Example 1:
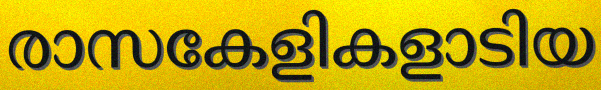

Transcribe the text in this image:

രാസകേളികളാടിയ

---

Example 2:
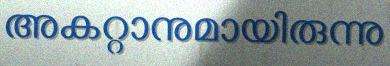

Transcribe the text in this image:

അകറ്റാനുമായിരുന്നു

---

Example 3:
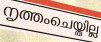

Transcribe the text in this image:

നൃത്തംചെയ്തില്ല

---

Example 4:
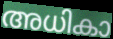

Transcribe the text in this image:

അധികാ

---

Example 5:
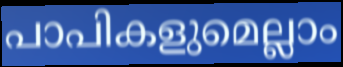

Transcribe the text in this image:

പാപികളുമെല്ലാം